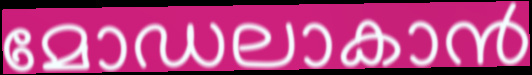
മോഡലാകാൻ